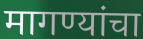
मागण्यांचा